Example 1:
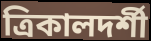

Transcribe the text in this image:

ত্রিকালদর্শী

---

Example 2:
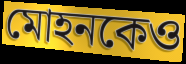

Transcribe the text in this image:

মোহনকেও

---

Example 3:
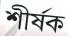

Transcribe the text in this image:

শীর্ষক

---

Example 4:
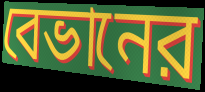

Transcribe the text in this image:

বেভানের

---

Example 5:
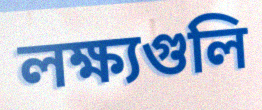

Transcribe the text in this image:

লক্ষ্যগুলি